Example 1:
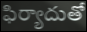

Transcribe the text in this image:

ఫిర్యాదుతో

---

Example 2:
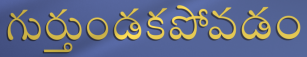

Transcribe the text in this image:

గుర్తుండకపోవడం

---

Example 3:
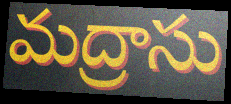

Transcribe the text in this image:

మద్రాసు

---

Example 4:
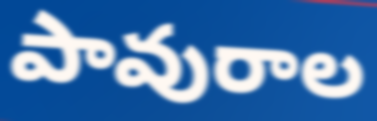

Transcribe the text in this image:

పావురాల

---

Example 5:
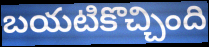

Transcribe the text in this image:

బయటికొచ్చింది